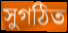
সুগঠিত